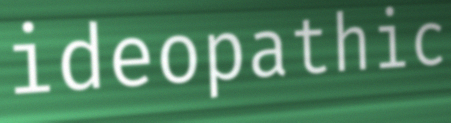
ideopathic